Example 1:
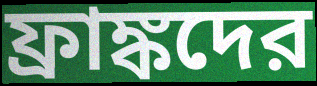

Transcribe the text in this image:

ফ্রাঙ্কদের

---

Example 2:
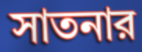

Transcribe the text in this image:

সাতনার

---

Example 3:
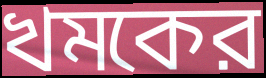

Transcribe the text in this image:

খমকের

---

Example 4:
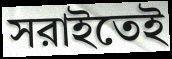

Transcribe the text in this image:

সরাইতেই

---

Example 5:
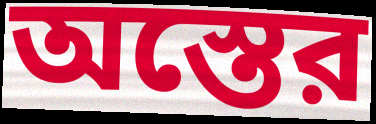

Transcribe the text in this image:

অস্তের